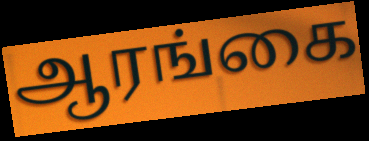
ஆரங்கை